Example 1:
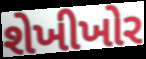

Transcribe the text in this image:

શેખીખોર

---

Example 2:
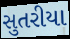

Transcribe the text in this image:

સુતરીયા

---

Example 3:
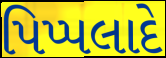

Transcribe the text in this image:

પિપ્પલાદે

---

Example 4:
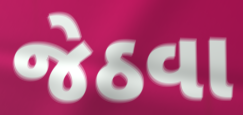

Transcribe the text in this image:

જેઠવા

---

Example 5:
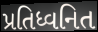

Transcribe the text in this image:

પ્રતિધ્વનિત